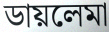
ডায়লেমা